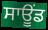
ਸਾਊਂਡ